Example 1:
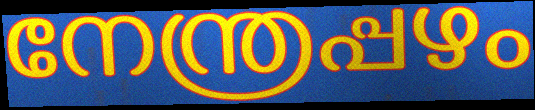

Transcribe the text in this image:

നേന്ത്രപ്പഴം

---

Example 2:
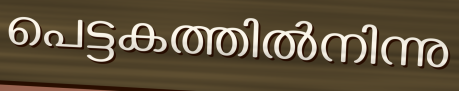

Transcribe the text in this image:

പെട്ടകത്തിൽനിന്നു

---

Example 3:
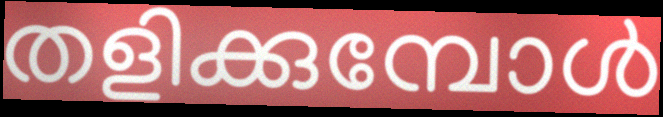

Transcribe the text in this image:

തളിക്കുമ്പോൾ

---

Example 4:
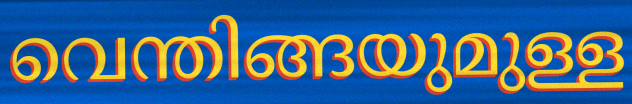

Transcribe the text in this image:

വെന്തിങ്ങയുമുള്ള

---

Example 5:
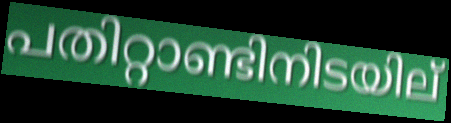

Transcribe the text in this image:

പതിറ്റാണ്ടിനിടയില്